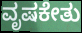
ವೃಷಕೇತು